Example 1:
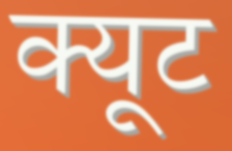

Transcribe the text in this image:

क्यूट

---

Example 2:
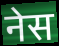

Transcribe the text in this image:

नेस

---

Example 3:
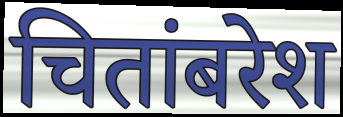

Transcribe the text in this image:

चितांबरेश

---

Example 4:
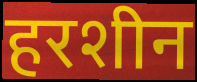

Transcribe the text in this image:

हरशीन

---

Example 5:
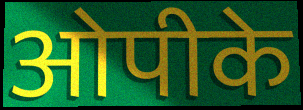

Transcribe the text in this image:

ओपीके